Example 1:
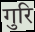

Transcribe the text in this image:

गुरि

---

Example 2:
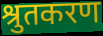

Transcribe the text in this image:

श्रुतकरण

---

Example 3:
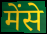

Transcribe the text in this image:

मेंसे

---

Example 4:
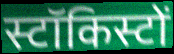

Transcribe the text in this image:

स्टॉकिस्टों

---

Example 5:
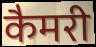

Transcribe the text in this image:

कैमरी